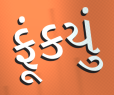
ફૂંકયું